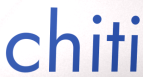
chiti